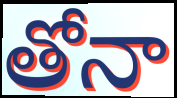
తోనా